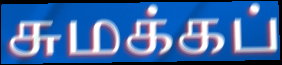
சுமக்கப்